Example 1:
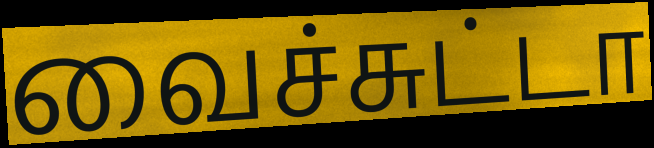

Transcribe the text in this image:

வைச்சுட்டா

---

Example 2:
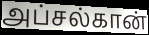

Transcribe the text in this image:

அப்சல்கான்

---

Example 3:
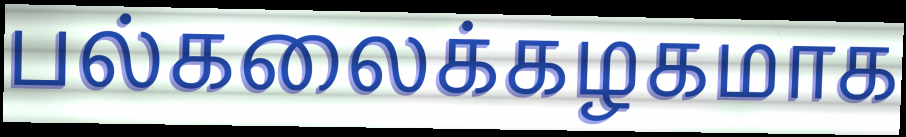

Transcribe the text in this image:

பல்கலைக்கழகமாக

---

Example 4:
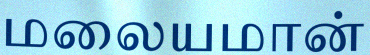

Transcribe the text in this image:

மலையமான்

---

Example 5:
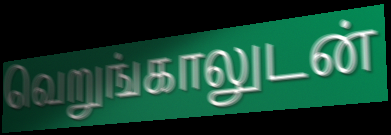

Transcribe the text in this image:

வெறுங்காலுடன்